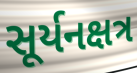
સૂર્યનક્ષત્ર